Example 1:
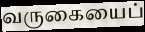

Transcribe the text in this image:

வருகையைப்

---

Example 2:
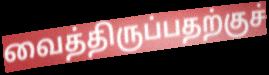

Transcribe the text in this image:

வைத்திருப்பதற்குச்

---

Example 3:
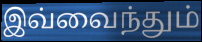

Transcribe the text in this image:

இவ்வைந்தும்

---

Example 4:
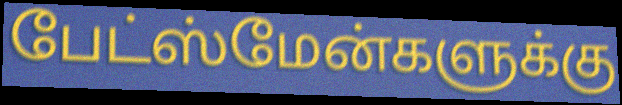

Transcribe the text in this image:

பேட்ஸ்மேன்களுக்கு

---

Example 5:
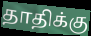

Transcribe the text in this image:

தாதிக்கு